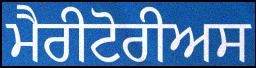
ਮੈਰੀਟੋਰੀਅਸ